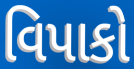
વિપાકો